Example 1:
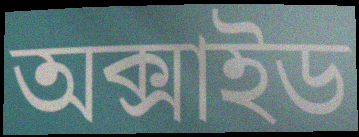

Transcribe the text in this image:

অক্সাইড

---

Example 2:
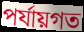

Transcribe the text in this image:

পর্যায়গত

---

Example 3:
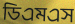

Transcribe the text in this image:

ডিএমএস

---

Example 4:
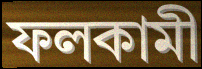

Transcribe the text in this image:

ফলকামী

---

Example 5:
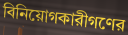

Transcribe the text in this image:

বিনিয়োগকারীগণের